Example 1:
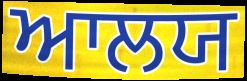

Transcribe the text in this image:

ਆਲਯ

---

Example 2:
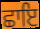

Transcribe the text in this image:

ਛਾਇ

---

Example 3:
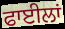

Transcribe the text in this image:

ਫਾਈਲਾਂ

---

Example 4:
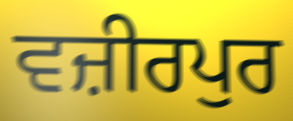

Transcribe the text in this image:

ਵਜ਼ੀਰਪੁਰ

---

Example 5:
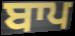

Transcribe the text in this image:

ਬਾਪ